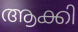
ആക്കി